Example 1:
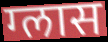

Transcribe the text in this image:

ग्लास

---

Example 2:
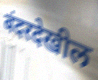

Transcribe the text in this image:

बंदरदेखील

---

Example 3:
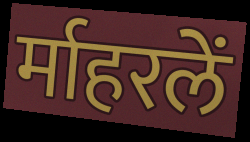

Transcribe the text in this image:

र्माहरलें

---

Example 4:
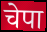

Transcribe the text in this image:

चेपा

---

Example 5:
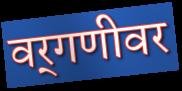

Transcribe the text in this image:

वर्गणीवर